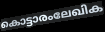
കൊട്ടാരംലേഖിക